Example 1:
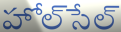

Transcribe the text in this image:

హోల్‌సేల్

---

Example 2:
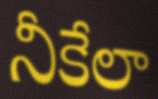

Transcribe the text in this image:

నీకేలా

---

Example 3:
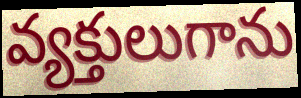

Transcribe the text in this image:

వ్యక్తులుగాను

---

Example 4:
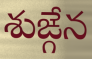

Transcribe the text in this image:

శుఙ్గేన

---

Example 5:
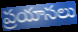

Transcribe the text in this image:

ప్రయాసలు